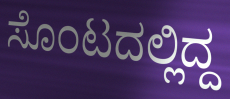
ಸೊಂಟದಲ್ಲಿದ್ದ